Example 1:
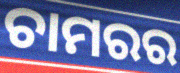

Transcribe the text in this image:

ଚାମରର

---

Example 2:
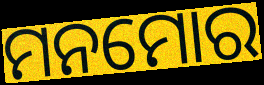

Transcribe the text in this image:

ମନମୋର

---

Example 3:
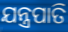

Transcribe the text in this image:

ଯନ୍ତ୍ରପାତି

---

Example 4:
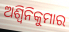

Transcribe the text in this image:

ଅଶ୍ୱିନିକୁମାର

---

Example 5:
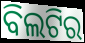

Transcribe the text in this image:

ବିଲଟିର